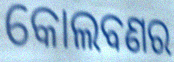
କୋଲବଣର